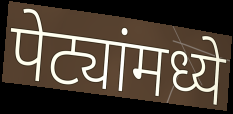
पेट्यांमध्ये